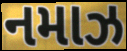
નમાઝ